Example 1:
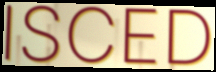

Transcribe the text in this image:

ISCED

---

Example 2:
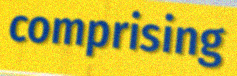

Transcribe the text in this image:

comprising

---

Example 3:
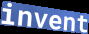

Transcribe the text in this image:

invent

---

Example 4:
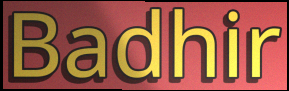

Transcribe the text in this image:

Badhir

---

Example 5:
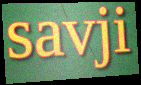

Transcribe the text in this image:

savji